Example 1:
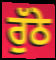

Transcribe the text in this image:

ਰੁੱਠੇ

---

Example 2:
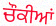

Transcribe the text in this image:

ਚੌਕੀਆਂ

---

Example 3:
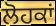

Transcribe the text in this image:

ਲੋਹਕਾਂ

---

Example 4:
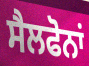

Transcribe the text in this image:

ਸੈਲਫੋਨਾਂ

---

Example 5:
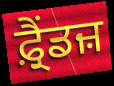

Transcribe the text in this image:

ਫ਼੍ਰੈਂਡਜ਼